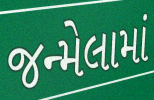
જન્મેલામાં